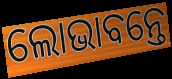
ଲୋଭାବନ୍ତେ